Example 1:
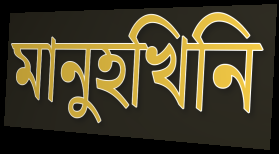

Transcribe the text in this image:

মানুহখিনি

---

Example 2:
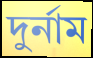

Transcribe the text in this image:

দুৰ্নাম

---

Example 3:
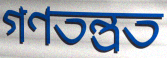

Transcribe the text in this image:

গণতন্ত্ৰত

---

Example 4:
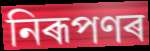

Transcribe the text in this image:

নিৰূপণৰ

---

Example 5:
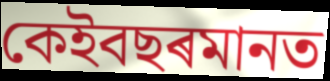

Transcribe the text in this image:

কেইবছৰমানত